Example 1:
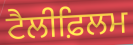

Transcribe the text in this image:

ਟੈਲੀਫ਼ਿਲਮ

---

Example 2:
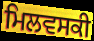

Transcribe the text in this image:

ਮਿਲਵਸਕੀ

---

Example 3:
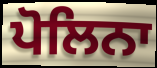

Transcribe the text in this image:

ਪੋਲਿਨਾ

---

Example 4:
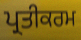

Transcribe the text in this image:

ਪ੍ਰਤੀਕਰਮ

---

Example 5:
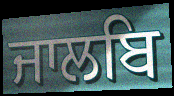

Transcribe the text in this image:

ਜਾਲਬਿ